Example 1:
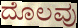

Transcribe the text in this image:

ದೊಲವು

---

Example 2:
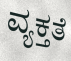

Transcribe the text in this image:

ವ್ಯಕ್ತತೆ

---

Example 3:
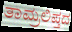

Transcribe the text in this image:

ತಾಮ್ರಲಿಪ್ತದ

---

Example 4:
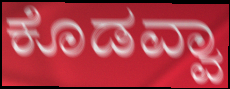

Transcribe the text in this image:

ಕೊಡವ್ವಾ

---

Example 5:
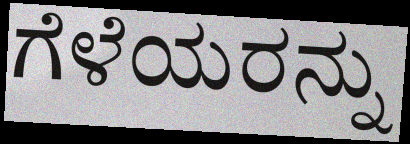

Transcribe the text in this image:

ಗೆಳೆಯರನ್ನು